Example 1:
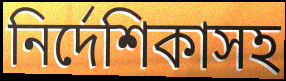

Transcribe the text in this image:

নির্দেশিকাসহ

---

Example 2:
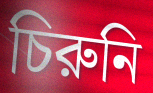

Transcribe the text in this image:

চিরুনি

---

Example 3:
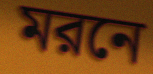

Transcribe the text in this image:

মরনে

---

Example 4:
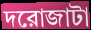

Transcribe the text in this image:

দরোজাটা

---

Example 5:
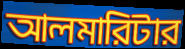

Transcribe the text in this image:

আলমারিটার